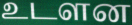
உடளன